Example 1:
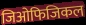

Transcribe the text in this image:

जिओफिजिकल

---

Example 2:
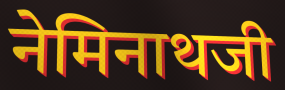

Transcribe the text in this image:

नेमिनाथजी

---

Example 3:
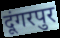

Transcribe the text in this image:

दूंगरपुर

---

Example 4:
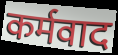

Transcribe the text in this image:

कर्मवाद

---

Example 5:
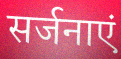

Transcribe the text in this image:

सर्जनाएं